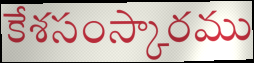
కేశసంస్కారము